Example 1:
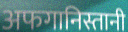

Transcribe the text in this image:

अफगानिस्तानी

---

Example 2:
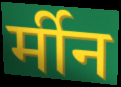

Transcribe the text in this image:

र्मीन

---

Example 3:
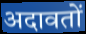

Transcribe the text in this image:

अदावतों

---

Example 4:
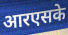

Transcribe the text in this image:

आरएसके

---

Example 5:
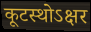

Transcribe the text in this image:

कूटस्थोऽक्षर